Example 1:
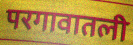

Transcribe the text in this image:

परगावातली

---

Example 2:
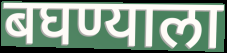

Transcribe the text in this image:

बघण्याला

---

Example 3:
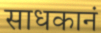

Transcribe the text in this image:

साधकानं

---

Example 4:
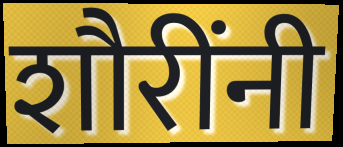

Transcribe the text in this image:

शौरींनी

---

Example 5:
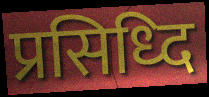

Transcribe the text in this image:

प्रसिध्दि